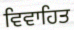
ਵਿਵਾਹਿਤ